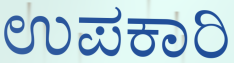
ಉಪಕಾರಿ